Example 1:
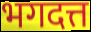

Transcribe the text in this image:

भगदत्त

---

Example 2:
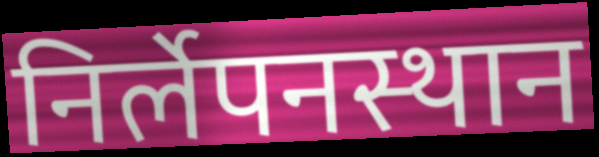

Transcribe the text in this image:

निर्लेपनस्थान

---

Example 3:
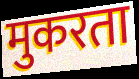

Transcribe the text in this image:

मुकरता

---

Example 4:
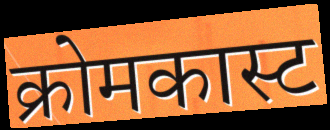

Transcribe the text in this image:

क्रोमकास्ट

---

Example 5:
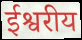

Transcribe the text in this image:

ईश्वरीय